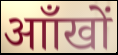
आाँखों